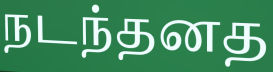
நடந்தனத